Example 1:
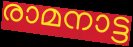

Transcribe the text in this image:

രാമനാട്ട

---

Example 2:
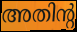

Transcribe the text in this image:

അതിന്റ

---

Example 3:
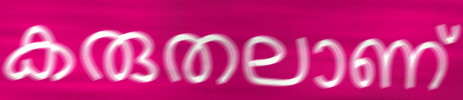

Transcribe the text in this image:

കരുതലാണ്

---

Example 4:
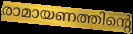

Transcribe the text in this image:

രാമായണത്തിന്റെ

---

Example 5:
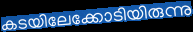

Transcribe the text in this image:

കടയിലേക്കോടിയിരുന്നു